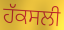
ਹੱਕਸਲੀ